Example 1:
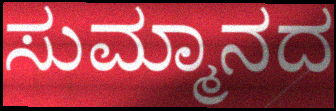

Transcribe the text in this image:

ಸುಮ್ಮಾನದ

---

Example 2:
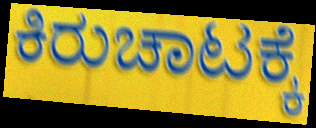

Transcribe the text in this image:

ಕಿರುಚಾಟಕ್ಕೆ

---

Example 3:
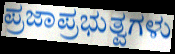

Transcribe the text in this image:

ಪ್ರಜಾಪ್ರಭುತ್ವಗಳು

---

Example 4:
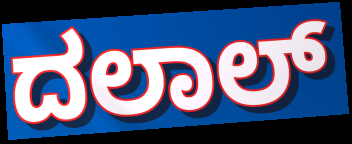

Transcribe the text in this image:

ದಲಾಲ್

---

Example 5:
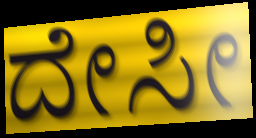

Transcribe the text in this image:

ದೇಸೀ